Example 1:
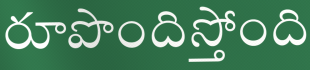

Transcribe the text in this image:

రూపొందిస్తోంది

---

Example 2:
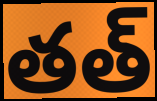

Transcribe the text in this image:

తత్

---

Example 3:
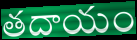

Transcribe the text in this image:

తదాయం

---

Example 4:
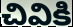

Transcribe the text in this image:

చివికి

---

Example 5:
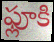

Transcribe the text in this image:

ఫ్లూకి